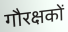
गौरक्षकों